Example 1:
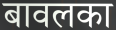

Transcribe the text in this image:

बावलका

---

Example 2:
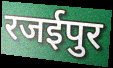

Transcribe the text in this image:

रजईपुर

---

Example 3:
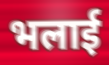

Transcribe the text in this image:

भलाई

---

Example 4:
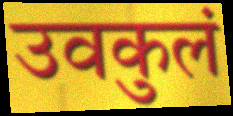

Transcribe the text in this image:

उवकुलं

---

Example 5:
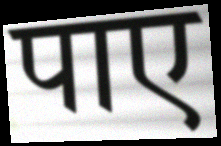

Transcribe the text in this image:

पाए